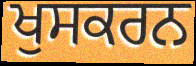
ਖੁਸਕਰਨ